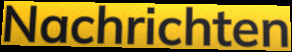
Nachrichten